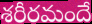
శరీరమందే